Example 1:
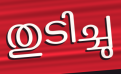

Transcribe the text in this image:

തുടിച്ചു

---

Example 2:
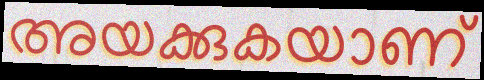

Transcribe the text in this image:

അയക്കുകയാണ്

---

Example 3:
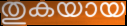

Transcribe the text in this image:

തുകയായ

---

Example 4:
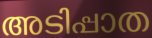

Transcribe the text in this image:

അടിപ്പാത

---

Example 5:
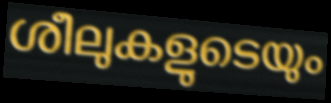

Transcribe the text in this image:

ശീലുകളുടെയും